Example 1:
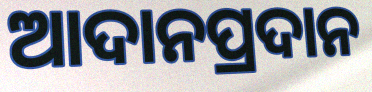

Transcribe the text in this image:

ଆଦାନପ୍ରଦାନ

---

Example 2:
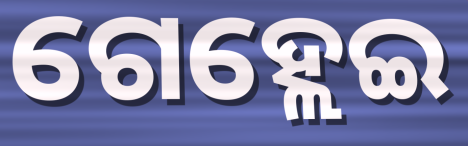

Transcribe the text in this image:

ଗେହ୍ଲେଇ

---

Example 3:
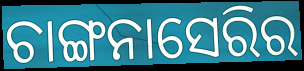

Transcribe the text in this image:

ଚାଙ୍ଗନାସେରିର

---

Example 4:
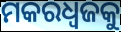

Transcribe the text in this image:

ମକରଧ୍ୱଜକୁ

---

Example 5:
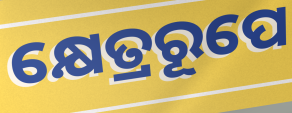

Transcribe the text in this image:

କ୍ଷେତ୍ରରୂପେ